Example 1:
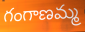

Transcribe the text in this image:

గంగాణమ్మ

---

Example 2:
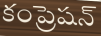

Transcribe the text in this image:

కంప్రెషన్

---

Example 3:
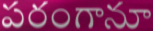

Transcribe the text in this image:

పరంగానూ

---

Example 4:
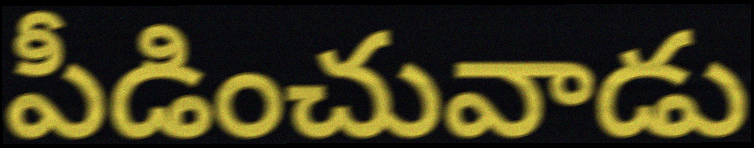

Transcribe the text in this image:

పీడించువాడు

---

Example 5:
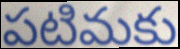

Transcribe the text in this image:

పటిమకు